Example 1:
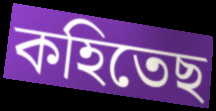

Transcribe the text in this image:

কহিতেছ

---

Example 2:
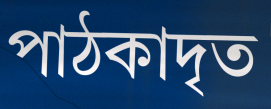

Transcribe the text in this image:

পাঠকাদৃত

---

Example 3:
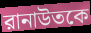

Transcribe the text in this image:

রানাউতকে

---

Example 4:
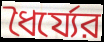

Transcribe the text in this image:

ধৈর্য্যের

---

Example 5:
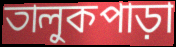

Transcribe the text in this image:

তালুকপাড়া